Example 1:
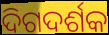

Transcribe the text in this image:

ଦିଗଦର୍ଶକ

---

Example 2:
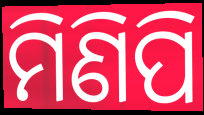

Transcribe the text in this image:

ମିଣିପି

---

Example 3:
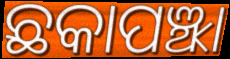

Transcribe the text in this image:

ଛକାପଞ୍ଝା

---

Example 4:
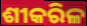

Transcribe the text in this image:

ଶୀକରିଳ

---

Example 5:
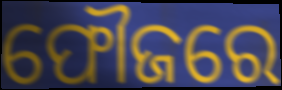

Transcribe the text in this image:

ଫୌଜରେ